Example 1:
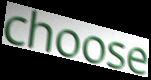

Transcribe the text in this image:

choose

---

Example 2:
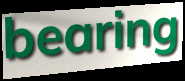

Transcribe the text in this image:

bearing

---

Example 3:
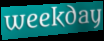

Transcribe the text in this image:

weekday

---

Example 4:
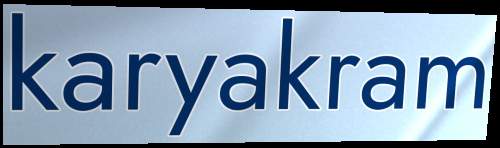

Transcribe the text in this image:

karyakram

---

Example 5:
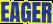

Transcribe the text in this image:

EAGER